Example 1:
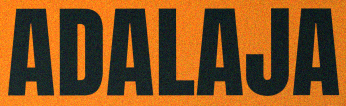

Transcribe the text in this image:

ADALAJA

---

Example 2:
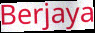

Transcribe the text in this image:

Berjaya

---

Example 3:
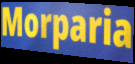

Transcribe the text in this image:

Morparia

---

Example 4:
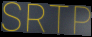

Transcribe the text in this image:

SRTP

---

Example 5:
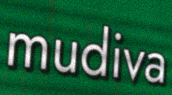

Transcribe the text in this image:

mudiva